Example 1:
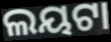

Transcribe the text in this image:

ଲୟଟା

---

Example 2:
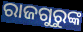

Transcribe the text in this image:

ରାଜଗୁରୁଙ୍କ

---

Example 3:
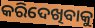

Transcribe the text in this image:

କରିଦେଖିବାକୁ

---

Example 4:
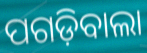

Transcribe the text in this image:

ପଗଡ଼ିବାଲା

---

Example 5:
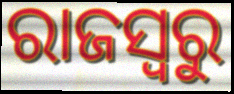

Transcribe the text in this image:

ରାଜସ୍ବରୁ